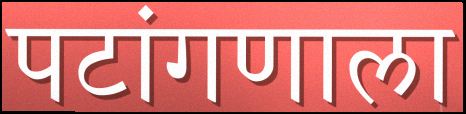
पटांगणाला